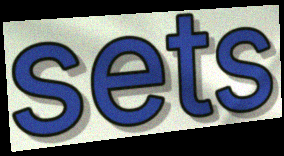
sets